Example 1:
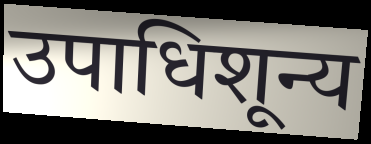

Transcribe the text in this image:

उपाधिशून्य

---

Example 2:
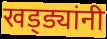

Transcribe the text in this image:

खड्ड्यांनी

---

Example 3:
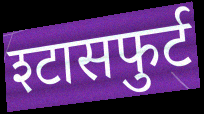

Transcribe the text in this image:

श्टासफुर्ट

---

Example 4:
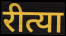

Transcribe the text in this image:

रीत्या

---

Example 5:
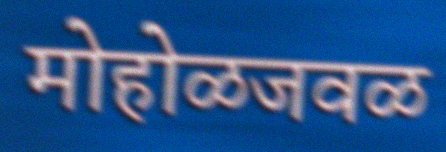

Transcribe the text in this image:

मोहोळजवळ